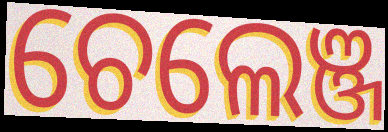
ଚେଲେଞ୍ଜ